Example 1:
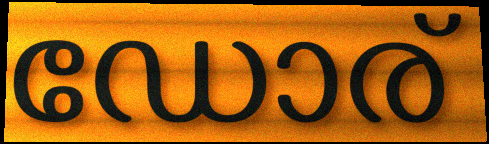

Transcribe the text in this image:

ഡോര്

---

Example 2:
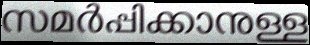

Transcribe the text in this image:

സമർപ്പിക്കാനുള്ള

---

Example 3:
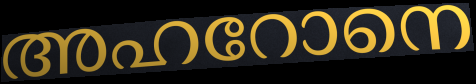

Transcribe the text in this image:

അഹറോനെ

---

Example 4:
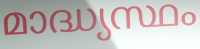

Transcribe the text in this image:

മാദ്ധ്യസ്ഥം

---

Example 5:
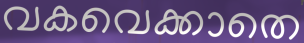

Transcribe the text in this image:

വകവെക്കാതെ